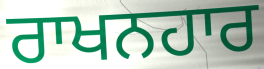
ਰਾਖਨਹਾਰ